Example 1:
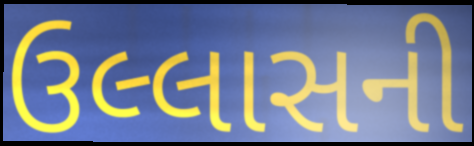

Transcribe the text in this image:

ઉલ્લાસની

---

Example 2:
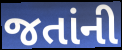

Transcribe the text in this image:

જતાંની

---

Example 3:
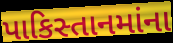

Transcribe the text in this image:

પાકિસ્તાનમાંના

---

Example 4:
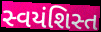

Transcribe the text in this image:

સ્વયંશિસ્ત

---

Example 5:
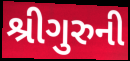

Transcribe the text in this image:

શ્રીગુરુની